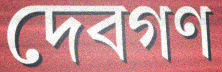
দেবগণ